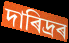
দাৰিদ্ৰৰ